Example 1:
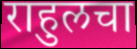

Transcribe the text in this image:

राहुलचा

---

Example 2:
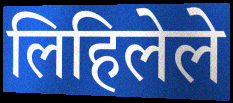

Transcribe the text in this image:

लिहिलेले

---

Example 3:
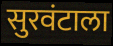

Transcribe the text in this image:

सुरवंटाला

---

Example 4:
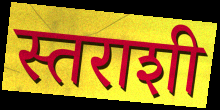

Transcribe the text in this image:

स्तराशी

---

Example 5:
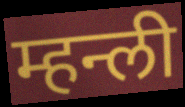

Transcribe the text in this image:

म्हन्ली